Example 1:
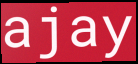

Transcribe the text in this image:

ajay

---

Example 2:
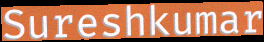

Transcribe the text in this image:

Sureshkumar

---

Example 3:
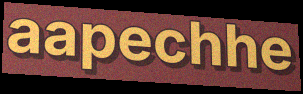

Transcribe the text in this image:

aapechhe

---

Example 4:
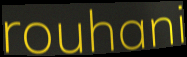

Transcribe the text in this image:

rouhani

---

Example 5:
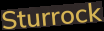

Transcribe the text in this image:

Sturrock